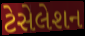
ટેસેલેશન